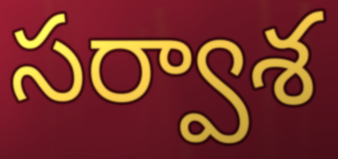
సర్వాశ